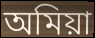
অমিয়া